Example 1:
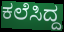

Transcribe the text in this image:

ಕಲೆಸಿದ್ದ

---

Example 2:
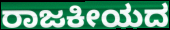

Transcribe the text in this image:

ರಾಜಕೀಯದ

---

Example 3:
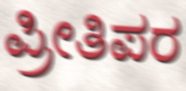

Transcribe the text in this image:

ಪ್ರೀತಿಪರ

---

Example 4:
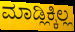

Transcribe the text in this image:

ಮಾಡ್ಲಿಕ್ಕಿಲ್ಲ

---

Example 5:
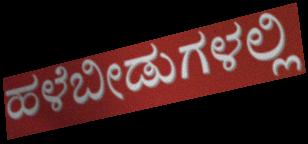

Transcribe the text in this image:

ಹಳೆಬೀಡುಗಳಲ್ಲಿ